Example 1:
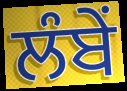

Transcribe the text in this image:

ਲੰਬੇਂ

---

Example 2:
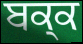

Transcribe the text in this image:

ਬਕ੍ਕ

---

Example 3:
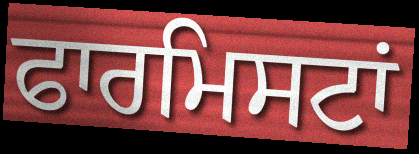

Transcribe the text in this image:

ਫਾਰਮਿਸਟਾਂ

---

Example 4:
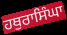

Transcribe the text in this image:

ਹਥੁਰਾਸਿੰਘਾ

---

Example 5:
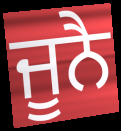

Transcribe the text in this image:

ਜੂਨੈ